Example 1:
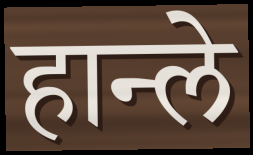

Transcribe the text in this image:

हान्ले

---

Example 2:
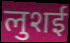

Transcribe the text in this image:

लुशई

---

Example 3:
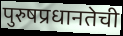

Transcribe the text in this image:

पुरुषप्रधानतेची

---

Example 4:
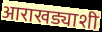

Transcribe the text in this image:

आराखड्याशी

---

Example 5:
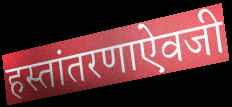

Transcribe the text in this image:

हस्तांतरणाऐवजी